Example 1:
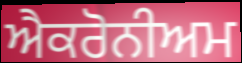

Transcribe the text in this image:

ਐਕਰੋਨੀਅਮ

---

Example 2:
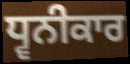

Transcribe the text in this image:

ਧ੍ਵਨੀਕਾਰ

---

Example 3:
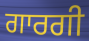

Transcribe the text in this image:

ਗਾਰਗੀ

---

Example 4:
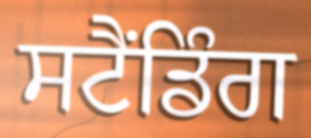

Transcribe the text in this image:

ਸਟੈਂਡਿੰਗ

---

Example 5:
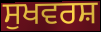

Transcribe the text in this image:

ਸੁਖਵਰਸ਼